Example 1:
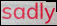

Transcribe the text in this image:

sadly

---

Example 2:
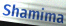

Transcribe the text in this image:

Shamima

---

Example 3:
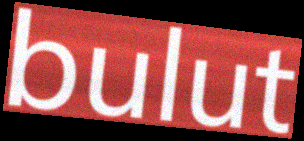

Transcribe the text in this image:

bulut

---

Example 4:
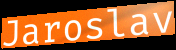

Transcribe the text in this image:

Jaroslav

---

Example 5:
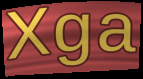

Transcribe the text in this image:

Xga